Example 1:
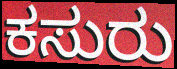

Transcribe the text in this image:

ಕಸುರು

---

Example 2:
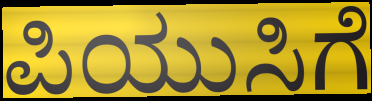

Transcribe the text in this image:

ಪಿಯುಸಿಗೆ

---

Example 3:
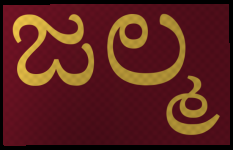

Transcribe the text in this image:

ಜಲ್ಮ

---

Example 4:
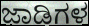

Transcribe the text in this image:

ಜಾಡಿಗಳ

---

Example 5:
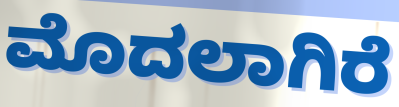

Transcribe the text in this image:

ಮೊದಲಾಗಿರೆ